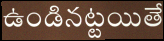
ఉండినట్టయితే